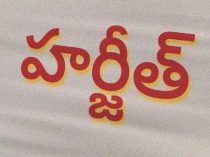
హర్జీత్